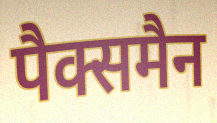
पैक्समैन